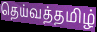
தெய்வத்தமிழ்